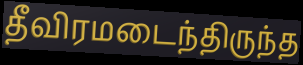
தீவிரமடைந்திருந்த